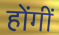
होंगीं